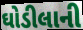
ઘોડીલાની